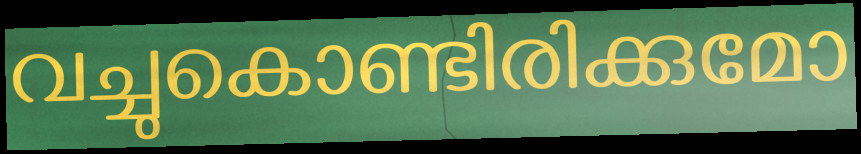
വച്ചുകൊണ്ടിരിക്കുമോ